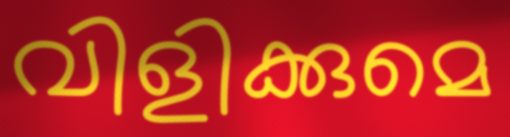
വിളിക്കുമെ